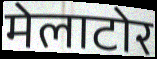
मेलाटोर